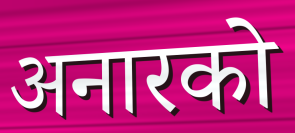
अनारको